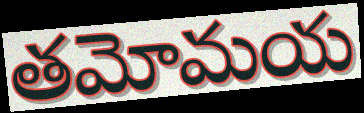
తమోమయ